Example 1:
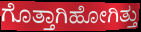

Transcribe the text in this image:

ಗೊತ್ತಾಗಿಹೋಗಿತ್ತು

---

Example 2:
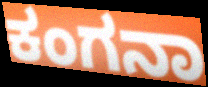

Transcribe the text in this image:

ಕಂಗನಾ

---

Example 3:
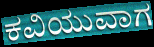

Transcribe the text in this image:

ಕವಿಯುವಾಗ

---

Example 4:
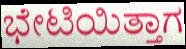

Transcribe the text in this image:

ಭೇಟಿಯಿತ್ತಾಗ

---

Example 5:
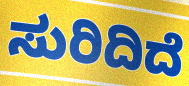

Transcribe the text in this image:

ಸುರಿದಿದೆ